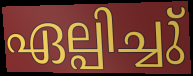
ഏല്പിച്ചു്